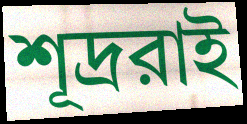
শূদ্ররাই